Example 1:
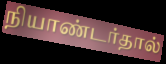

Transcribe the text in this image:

நியாண்டர்தால்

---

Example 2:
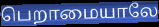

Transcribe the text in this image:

பெறாமையாலே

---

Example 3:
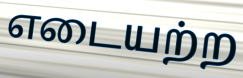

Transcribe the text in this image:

எடையற்ற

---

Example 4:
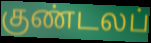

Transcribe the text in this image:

குண்டலப்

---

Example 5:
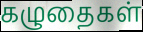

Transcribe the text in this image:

கழுதைகள்